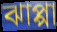
ঝাপ্পা